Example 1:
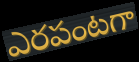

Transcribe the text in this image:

ఎరపంటగా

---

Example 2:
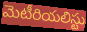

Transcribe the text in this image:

మెటీరియలిస్టు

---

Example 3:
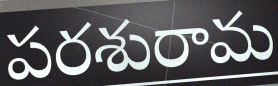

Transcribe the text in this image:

పరశురామ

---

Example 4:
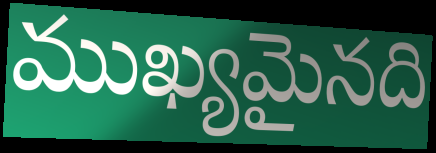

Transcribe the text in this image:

ముఖ్యమైనది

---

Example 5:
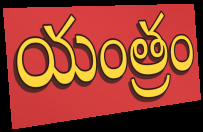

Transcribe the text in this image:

యంత్రం